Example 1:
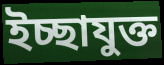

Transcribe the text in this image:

ইচ্ছাযুক্ত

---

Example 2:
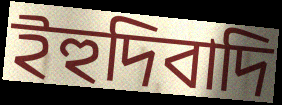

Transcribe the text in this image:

ইহুদিবাদি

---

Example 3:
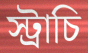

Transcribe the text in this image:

স্ট্রাচি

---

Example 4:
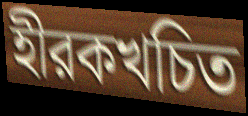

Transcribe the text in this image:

হীরকখচিত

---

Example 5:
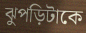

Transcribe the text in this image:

ঝুপড়িটাকে